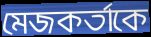
মেজকর্তাকে